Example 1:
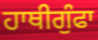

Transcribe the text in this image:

ਹਾਥੀਗੁੰਫਾ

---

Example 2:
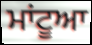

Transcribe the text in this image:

ਮਾਂਟੂਆ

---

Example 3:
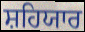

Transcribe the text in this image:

ਸ਼ਹਿਯਾਰ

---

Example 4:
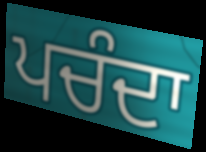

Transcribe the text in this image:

ਪਚੰਦਾ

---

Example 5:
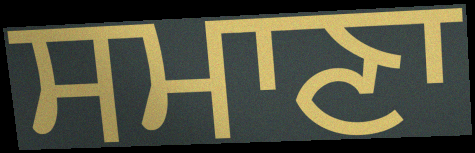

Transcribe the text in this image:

ਸਮਾਣਾ